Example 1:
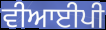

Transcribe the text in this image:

ਵੀਆਈਪੀ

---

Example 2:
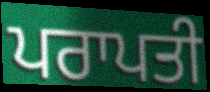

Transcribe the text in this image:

ਪਰਾਪਤੀ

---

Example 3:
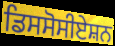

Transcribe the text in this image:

ਡਿਸਸੋਸੀਏਸ਼ਨ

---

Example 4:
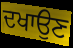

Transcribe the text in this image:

ਦਖਾਉਣ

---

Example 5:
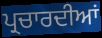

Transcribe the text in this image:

ਪ੍ਰਚਾਰਦੀਆਂ